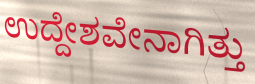
ಉದ್ದೇಶವೇನಾಗಿತ್ತು